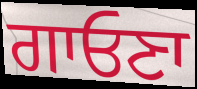
ਗਾਓਣਾ